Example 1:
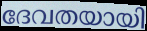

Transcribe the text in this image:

ദേവതയായി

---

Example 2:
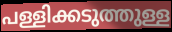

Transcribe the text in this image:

പള്ളിക്കടുത്തുള്ള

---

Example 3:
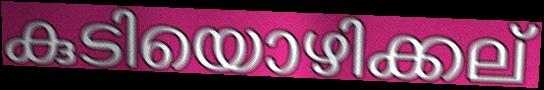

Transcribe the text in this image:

കുടിയൊഴിക്കല്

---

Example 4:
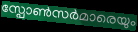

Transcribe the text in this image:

സ്പോൺസർമാരെയും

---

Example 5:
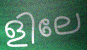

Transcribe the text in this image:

ളിലേ